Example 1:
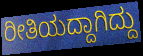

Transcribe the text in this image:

ರೀತಿಯದ್ದಾಗಿದ್ದು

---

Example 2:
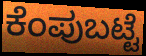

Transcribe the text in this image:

ಕೆಂಪುಬಟ್ಟೆ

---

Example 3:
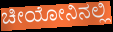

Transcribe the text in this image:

ಚೀಯೋನಿನಲ್ಲಿ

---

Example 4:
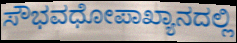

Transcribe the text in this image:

ಸೌಭವಧೋಪಾಖ್ಯಾನದಲ್ಲಿ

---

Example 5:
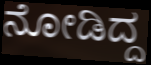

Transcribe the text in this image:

ನೋಡಿದ್ದ